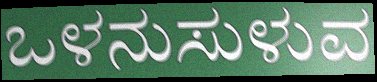
ಒಳನುಸುಳುವ